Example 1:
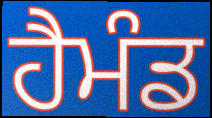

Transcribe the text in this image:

ਹੈਮੰਡ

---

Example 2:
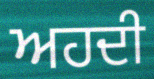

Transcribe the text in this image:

ਅਹਦੀ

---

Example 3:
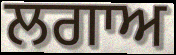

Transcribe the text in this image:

ਲਗਾਅ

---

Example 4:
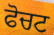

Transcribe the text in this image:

ਫੋਚਟ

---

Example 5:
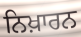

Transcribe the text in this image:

ਨਿਖ਼ਾਰਨ